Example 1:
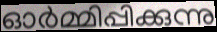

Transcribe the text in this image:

ഓർമ്മിപ്പിക്കുന്നു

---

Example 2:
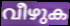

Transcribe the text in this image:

വീഴുക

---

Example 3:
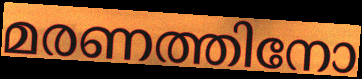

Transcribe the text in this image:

മരണത്തിനോ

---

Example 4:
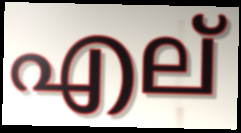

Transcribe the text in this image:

എല്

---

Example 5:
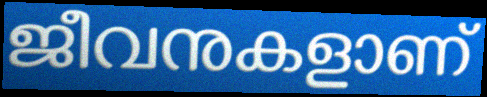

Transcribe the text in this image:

ജീവനുകളാണ്